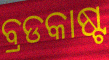
ବ୍ରଡକାଷ୍ଟ